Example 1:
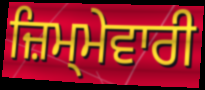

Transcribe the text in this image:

ਜ਼ਿਮ੍ਮੇਵਾਰੀ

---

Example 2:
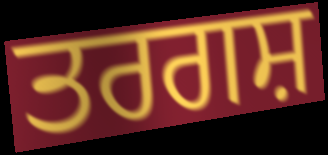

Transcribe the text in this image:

ਤਰਗਸ਼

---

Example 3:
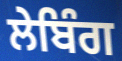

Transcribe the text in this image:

ਲੇਬਿੰਗ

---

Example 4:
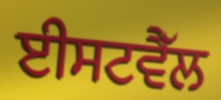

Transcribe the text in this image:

ਈਸਟਵੈੱਲ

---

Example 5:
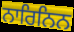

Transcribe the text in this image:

ਨਾਰਿਨਿਨ